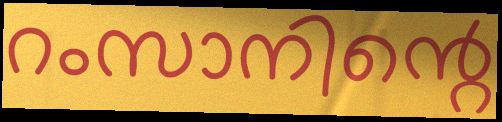
റംസാനിന്റെ